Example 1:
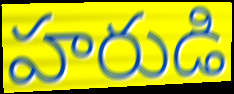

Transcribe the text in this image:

హరుడి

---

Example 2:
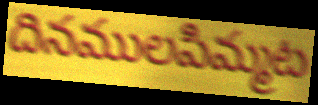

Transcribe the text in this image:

దినములపిమ్మట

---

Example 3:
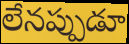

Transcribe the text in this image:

లేనప్పుడూ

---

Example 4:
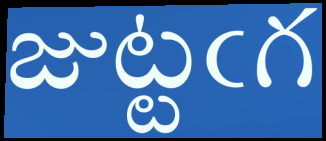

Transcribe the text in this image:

జుట్టఁగ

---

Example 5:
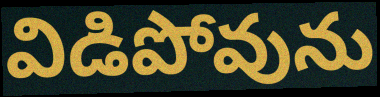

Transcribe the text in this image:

విడిపోవును